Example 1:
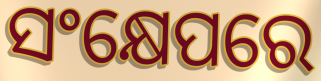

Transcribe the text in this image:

ସଂକ୍ଷେପରେ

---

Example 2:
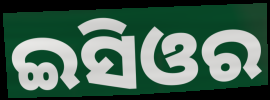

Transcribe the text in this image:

ଇସିଓର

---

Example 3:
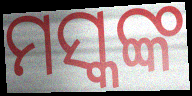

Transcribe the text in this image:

ମସ୍କଙ୍କ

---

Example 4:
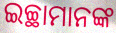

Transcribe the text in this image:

ଇଚ୍ଛାମାନଙ୍କ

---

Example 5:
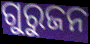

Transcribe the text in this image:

ଗୁରୁଜନ